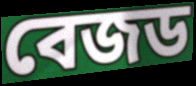
বেজড